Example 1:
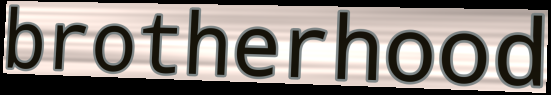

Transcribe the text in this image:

brotherhood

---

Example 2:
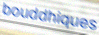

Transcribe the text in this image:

bouddhiques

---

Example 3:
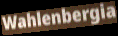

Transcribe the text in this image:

Wahlenbergia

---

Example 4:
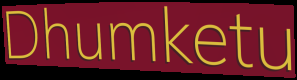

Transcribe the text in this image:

Dhumketu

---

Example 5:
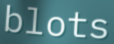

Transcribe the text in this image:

blots